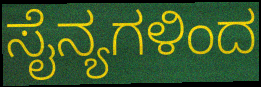
ಸೈನ್ಯಗಳಿಂದ